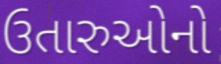
ઉતારુઓનો